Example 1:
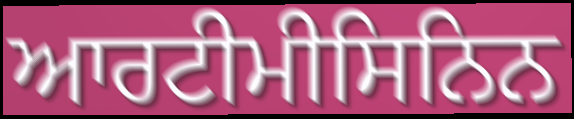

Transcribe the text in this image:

ਆਰਟੀਮੀਸਿਨਿਨ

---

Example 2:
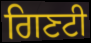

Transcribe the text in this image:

ਗਿਣਟੀ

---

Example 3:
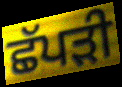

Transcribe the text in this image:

ਛੱਪੜੀ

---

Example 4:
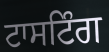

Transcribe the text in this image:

ਟਾਸਟਿੰਗ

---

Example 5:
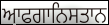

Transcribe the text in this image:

ਆਫਗਾਨਿਸਤਾਨ